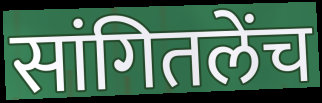
सांगितलेंच